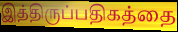
இத்திருப்பதிகத்தை